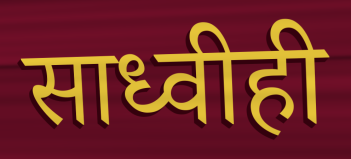
साध्वीही